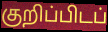
குறிப்பிடப்